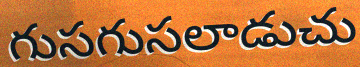
గుసగుసలాడుచు